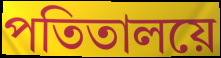
পতিতালয়ে